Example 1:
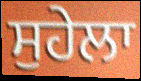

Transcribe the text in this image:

ਸੁਹੇਲਾ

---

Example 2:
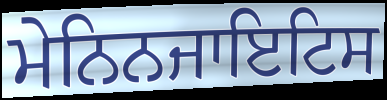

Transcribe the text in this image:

ਮੇਨਿਨਜਾਇਟਿਸ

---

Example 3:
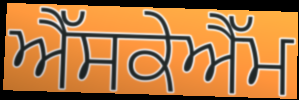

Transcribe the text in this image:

ਐੱਸਕੇਐੱਮ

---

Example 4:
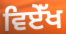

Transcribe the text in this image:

ਵਿਏੱਖ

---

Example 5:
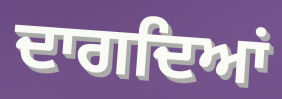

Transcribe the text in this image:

ਦਾਗਦਿਆਂ